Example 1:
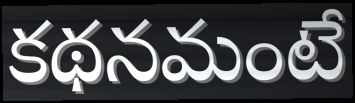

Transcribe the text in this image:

కథనమంటే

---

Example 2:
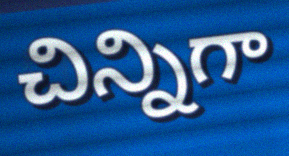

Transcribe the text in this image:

చిన్నిగా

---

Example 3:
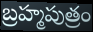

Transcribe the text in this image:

బ్రహ్మపుత్రం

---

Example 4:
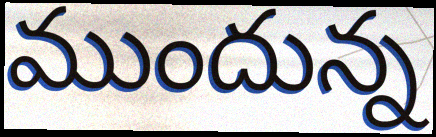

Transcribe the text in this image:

ముందున్న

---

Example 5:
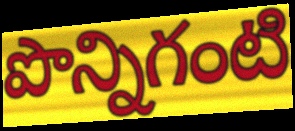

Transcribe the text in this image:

పొన్నిగంటి